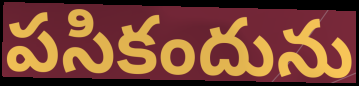
పసికందును